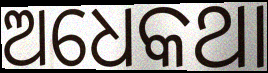
ଅଧେକଥା